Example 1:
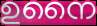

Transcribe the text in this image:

ഉനൈ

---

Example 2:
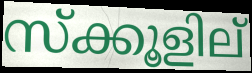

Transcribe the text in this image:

സ്ക്കൂളില്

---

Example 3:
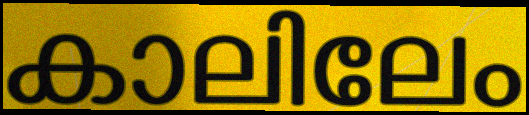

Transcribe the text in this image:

കാലിലേം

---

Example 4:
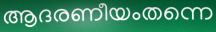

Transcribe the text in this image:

ആദരണീയംതന്നെ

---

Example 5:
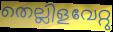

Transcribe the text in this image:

തെല്ലിളവേറ്റു